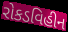
રોકડવિહીન